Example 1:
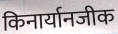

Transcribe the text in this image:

किनार्यानजीक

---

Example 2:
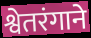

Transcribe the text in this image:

श्वेतरंगाने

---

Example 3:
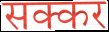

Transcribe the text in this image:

सक्कर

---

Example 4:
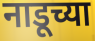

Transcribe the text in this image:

नाडूच्या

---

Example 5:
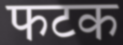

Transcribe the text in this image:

फटक